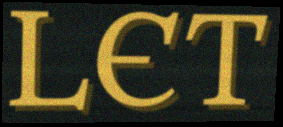
LET